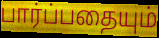
பார்ப்பதையும்